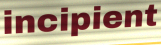
incipient